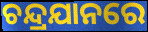
ଚନ୍ଦ୍ରଯାନରେ